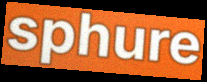
sphure